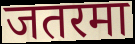
जतरमा